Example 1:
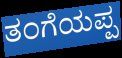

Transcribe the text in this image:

ತಂಗೆಯಪ್ಪ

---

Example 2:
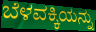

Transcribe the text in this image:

ಬೆಳವಕ್ಕಿಯನ್ನು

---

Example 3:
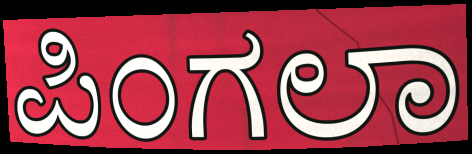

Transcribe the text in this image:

ಪಿಂಗಲಾ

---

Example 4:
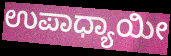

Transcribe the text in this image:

ಉಪಾಧ್ಯಾಯೀ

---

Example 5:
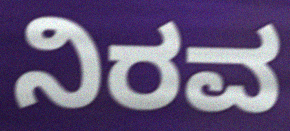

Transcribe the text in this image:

ನಿರವ